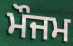
ਮੌਜਮ